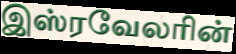
இஸ்ரவேலரின்